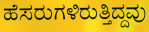
ಹೆಸರುಗಳಿರುತ್ತಿದ್ದವು